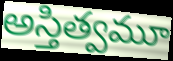
అస్తిత్వమూ